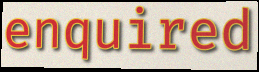
enquired